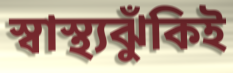
স্বাস্থ্যঝুঁকিই